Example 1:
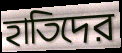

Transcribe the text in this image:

হাতিদের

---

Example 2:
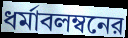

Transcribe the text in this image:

ধর্মাবলম্বনের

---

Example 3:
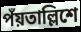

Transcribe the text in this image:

পঁয়তাল্লিশে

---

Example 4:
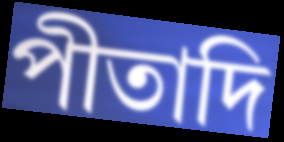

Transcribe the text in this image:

পীতাদি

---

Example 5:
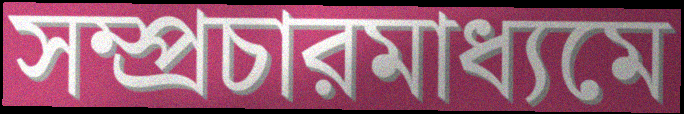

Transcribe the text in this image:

সম্প্রচারমাধ্যমে